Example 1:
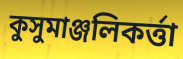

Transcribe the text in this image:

কুসুমাঞ্জলিকর্ত্তা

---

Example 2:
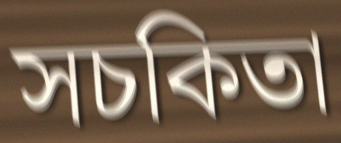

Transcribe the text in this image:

সচকিতা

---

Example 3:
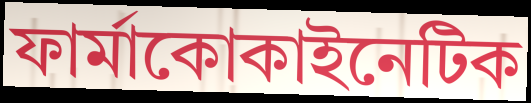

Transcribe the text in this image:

ফার্মাকোকাইনেটিক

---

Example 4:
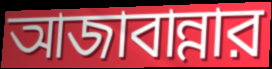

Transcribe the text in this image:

আজাবান্নার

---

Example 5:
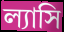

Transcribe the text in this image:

ল্যাসি